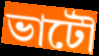
ভাটৌ